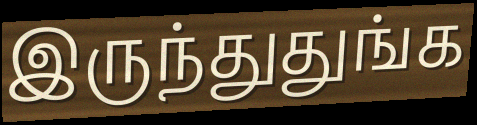
இருந்துதுங்க